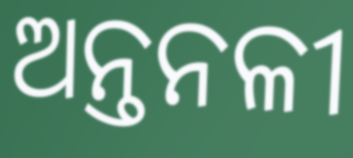
ଅନ୍ତନଳୀ